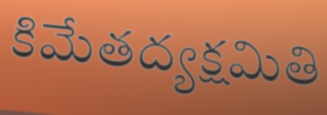
కిమేతద్యక్షమితి